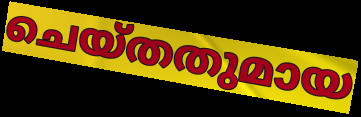
ചെയ്തതുമായ